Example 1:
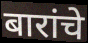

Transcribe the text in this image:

बारांचे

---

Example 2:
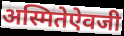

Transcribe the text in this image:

अस्मितेऐवजी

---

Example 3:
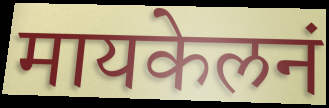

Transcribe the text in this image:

मायकेलनं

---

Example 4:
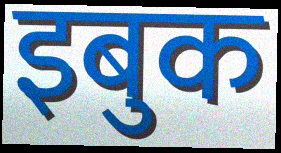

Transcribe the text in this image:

इबुक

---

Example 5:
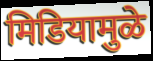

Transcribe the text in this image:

मिडियामुळे